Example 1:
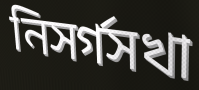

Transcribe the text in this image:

নিসর্গসখা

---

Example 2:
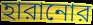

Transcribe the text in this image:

হারানোর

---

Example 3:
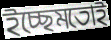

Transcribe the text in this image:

ইচ্ছেমতোই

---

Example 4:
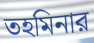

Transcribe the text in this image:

তহমিনার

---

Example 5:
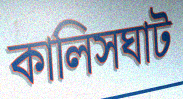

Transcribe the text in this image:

কালিসঘাট